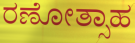
ರಣೋತ್ಸಾಹ